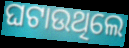
ଘଟାଉଥିଲେ